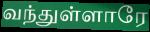
வந்துள்ளாரே